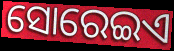
ସୋରେଇଏ